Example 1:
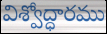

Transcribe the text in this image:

విశ్వోద్ధారము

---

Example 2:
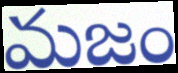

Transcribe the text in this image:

మజం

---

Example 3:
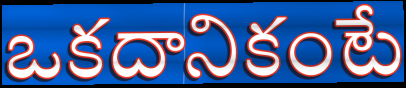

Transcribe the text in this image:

ఒకదానికంటే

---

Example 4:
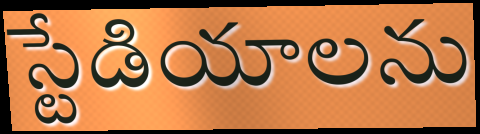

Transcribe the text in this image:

స్టేడియాలను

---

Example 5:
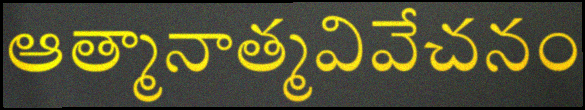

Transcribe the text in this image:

ఆత్మానాత్మవివేచనం